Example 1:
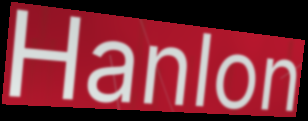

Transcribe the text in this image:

Hanlon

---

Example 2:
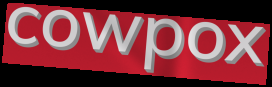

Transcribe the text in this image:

cowpox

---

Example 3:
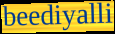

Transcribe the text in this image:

beediyalli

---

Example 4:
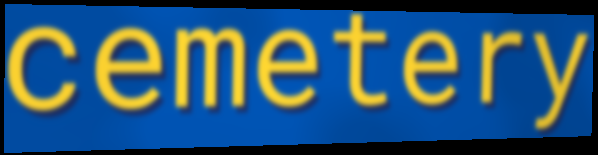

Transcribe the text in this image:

cemetery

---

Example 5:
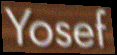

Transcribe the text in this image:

Yosef